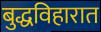
बुद्धविहारात